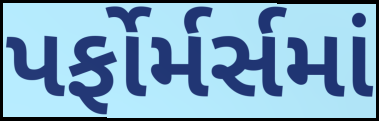
પર્ફોર્મર્સમાં